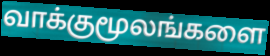
வாக்குமூலங்களை